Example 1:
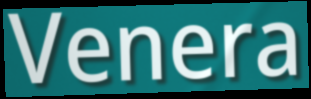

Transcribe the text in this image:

Venera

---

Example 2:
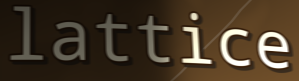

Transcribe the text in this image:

lattice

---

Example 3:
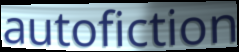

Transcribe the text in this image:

autofiction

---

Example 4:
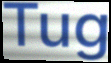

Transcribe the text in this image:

Tug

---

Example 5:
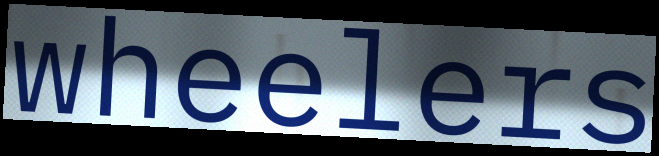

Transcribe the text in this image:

wheelers